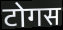
टोगस